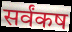
सर्वंकष